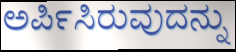
ಅರ್ಪಿಸಿರುವುದನ್ನು